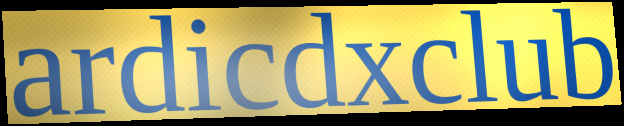
ardicdxclub